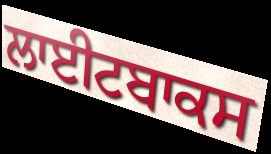
ਲਾਈਟਬਾਕਸ